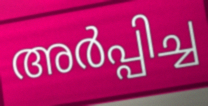
അർപ്പിച്ച